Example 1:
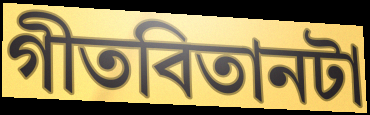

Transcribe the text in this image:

গীতবিতানটা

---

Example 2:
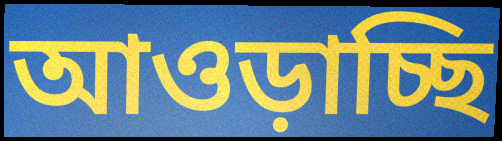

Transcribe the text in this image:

আওড়াচ্ছি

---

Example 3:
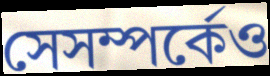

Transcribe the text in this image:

সেসম্পর্কেও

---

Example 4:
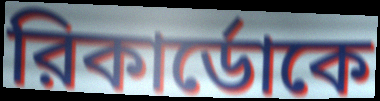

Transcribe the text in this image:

রিকার্ডোকে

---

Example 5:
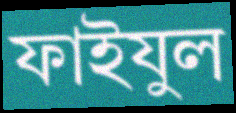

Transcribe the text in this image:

ফাইযুল